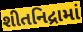
શીતનિદ્રામાં